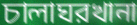
চালাঘরখানা